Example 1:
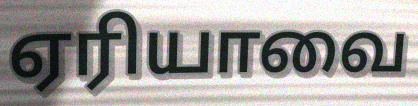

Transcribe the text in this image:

ஏரியாவை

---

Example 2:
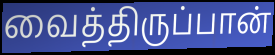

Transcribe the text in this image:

வைத்திருப்பான்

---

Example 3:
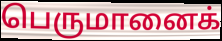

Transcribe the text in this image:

பெருமானைக்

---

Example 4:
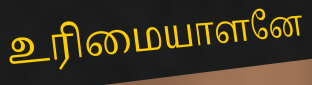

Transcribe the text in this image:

உரிமையாளனே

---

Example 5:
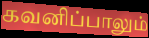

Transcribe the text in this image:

கவனிப்பாலும்